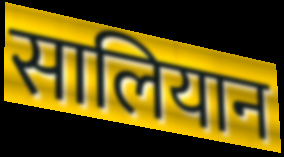
सालियान